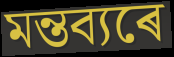
মন্তব্যৰে